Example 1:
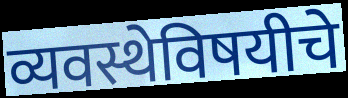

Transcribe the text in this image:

व्यवस्थेविषयीचे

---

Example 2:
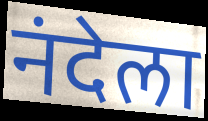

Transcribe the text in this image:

नंदेला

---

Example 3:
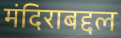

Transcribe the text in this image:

मंदिराबद्दल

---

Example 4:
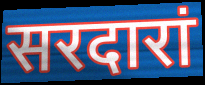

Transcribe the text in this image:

सरदारां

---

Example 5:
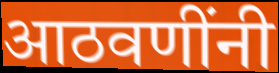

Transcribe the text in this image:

आठवणींनी